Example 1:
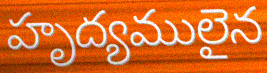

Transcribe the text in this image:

హృద్యములైన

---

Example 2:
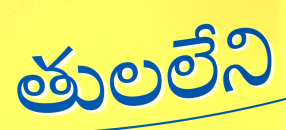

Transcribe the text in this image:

తులలేని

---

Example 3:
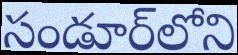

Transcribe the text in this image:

సండూర్‌లోని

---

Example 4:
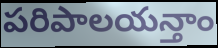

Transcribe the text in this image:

పరిపాలయన్తాం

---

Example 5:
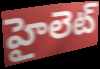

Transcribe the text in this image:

హైలెట్